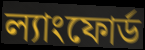
ল্যাংফোর্ড